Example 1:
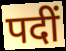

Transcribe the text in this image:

पदीं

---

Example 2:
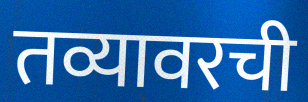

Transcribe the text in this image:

तव्यावरची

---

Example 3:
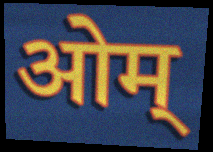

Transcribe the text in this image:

ओम्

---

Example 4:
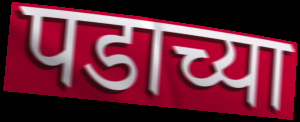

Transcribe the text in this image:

पडाच्या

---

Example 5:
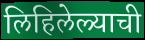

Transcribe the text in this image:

लिहिलेल्याची